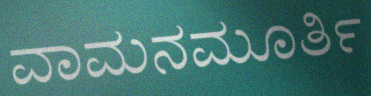
ವಾಮನಮೂರ್ತಿ